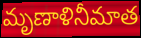
మృణాళినీమాత